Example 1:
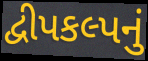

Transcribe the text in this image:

દ્વીપકલ્પનું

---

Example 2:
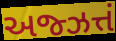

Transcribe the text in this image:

અજ્ઝત્તં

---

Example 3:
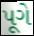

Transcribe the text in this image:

પૂગે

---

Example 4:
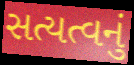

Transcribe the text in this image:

સત્યત્વનું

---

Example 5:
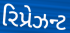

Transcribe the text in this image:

રિપ્રેઝન્ટ